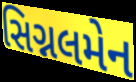
સિગ્નલમેન